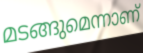
മടങ്ങുമെന്നാണ്